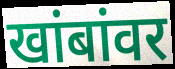
खांबांवर